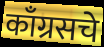
काँग्रसचे